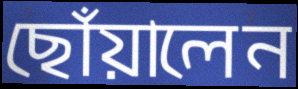
ছোঁয়ালেন